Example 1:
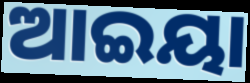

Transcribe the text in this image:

ଆଇୟା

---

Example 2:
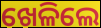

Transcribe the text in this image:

ଖେଳିଲେ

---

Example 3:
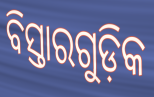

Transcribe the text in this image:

ବିସ୍ତାରଗୁଡ଼ିକ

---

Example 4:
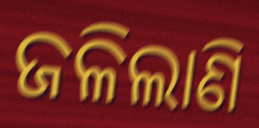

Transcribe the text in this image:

ଜଳିଲାଣି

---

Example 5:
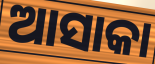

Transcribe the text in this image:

ଆସାକା